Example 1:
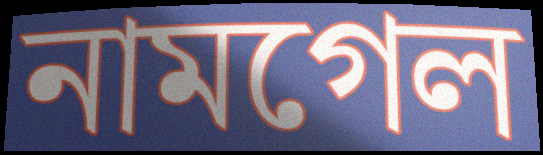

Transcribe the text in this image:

নামগেল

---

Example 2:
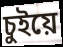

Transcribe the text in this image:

চুইয়ে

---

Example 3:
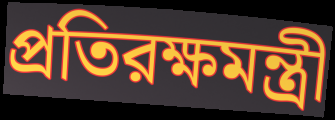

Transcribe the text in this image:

প্রতিরক্ষমন্ত্রী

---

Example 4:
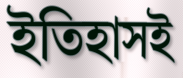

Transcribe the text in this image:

ইতিহাসই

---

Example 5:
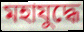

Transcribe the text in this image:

মহাযুদ্ধে